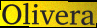
Olivera